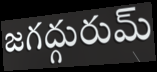
జగద్గురుమ్